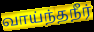
வாய்ந்தநீர்